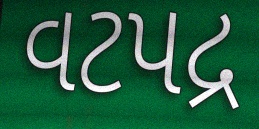
વટપદ્ર